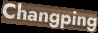
Changping